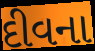
દીવના